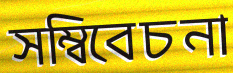
সম্বিবেচনা